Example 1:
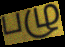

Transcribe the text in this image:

பழு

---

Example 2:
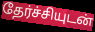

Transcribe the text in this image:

தேர்ச்சியுடன்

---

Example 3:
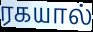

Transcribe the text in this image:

ரகயால்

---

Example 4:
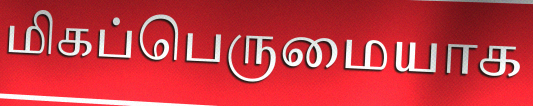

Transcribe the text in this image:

மிகப்பெருமையாக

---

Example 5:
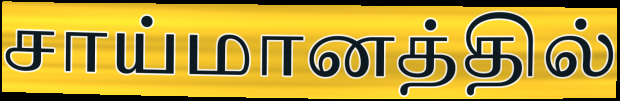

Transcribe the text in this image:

சாய்மானத்தில்